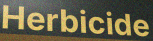
Herbicide